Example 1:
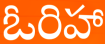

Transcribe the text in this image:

ఓరిహా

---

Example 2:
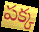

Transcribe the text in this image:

పక్క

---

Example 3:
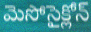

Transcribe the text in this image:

మెసోసైక్లోన్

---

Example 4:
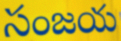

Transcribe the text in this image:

సంజయ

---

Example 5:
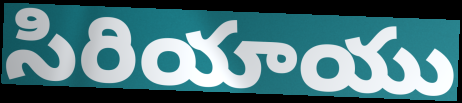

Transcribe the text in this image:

సిరియాయు